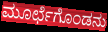
ಮೂರ್ಛೆಗೊಂಡನು